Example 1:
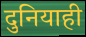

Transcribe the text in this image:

दुनियाही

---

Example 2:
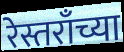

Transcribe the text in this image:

रेस्तराँच्या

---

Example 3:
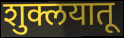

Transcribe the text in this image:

शुक्लयातू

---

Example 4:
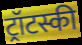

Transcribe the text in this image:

ट्रॉटस्की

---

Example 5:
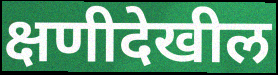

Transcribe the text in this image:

क्षणीदेखील